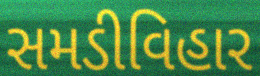
સમડીવિહાર